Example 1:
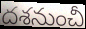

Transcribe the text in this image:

దశనుంచీ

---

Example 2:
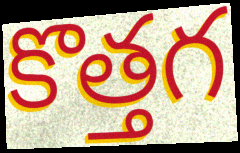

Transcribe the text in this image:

కొత్తగ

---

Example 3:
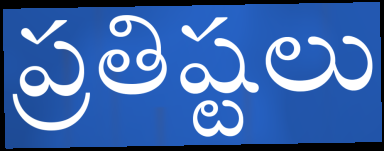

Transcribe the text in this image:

ప్రతిష్టలు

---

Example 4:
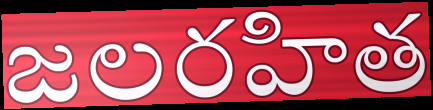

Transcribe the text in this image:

జలరహిత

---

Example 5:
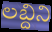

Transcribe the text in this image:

లబ్దిని